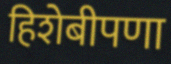
हिशेबीपणा